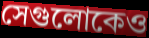
সেগুলোকেও